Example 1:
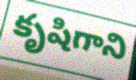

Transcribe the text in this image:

కృషిగాని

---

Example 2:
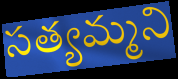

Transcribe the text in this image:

సత్యమ్మని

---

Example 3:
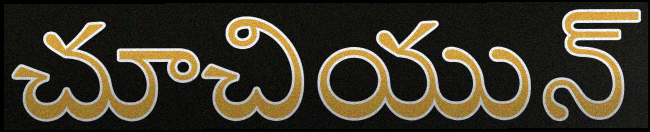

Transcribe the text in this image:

చూచియున్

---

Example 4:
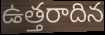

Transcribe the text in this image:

ఉత్తరాదిన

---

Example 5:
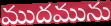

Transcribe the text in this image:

ముదమును